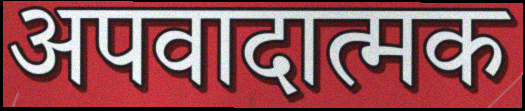
अपवादात्मक